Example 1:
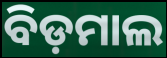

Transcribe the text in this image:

ବିଡ଼ମାଲ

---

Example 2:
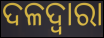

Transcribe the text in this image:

ଦଳଦ୍ୱାରା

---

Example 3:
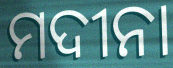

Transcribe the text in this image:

ମଦୀନା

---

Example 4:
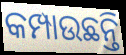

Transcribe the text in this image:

କମ୍ପାଉଛନ୍ତି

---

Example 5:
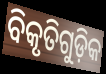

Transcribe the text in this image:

ବିକୃତିଗୁଡ଼ିକ